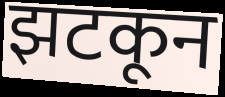
झटकून